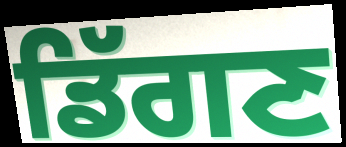
ਡਿੱਗਣ